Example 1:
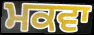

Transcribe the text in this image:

ਮਕਵਾ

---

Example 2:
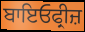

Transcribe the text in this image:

ਬਾਇਓਫ੍ਰੀਜ਼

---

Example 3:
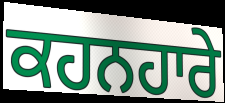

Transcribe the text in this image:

ਕਹਨਹਾਰੇ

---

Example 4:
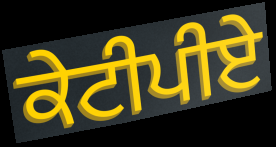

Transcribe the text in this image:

ਕੇਟੀਪੀਏ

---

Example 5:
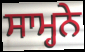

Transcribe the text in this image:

ਸਾਮ੍ਹਨੇ